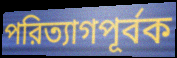
পরিত্যাগপূর্বক